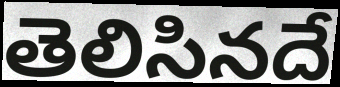
తెలిసినదే